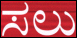
ಸಲು